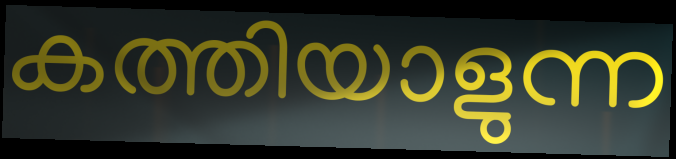
കത്തിയാളുന്ന